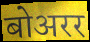
बोअरर